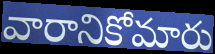
వారానికోమారు